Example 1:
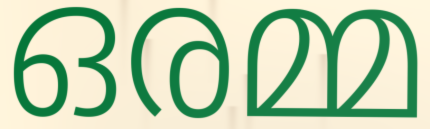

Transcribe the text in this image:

ഒരമ്മ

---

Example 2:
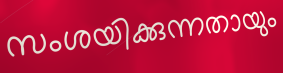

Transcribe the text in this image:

സംശയിക്കുന്നതായും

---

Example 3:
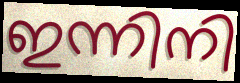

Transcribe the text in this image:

ഇന്നിനി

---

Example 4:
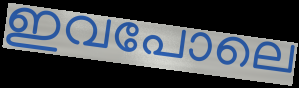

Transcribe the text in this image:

ഇവപോലെ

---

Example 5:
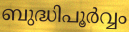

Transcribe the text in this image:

ബുദ്ധിപൂർവ്വം